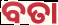
ବତା